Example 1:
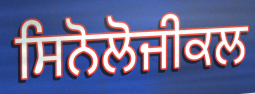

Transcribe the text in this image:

ਸਿਨੋਲੋਜੀਕਲ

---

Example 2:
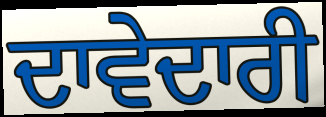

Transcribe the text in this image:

ਦਾਵੇਦਾਰੀ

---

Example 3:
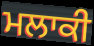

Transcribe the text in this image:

ਮਲਾਕੀ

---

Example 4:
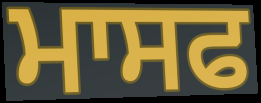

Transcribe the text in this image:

ਮਾਸਫ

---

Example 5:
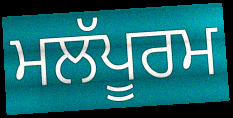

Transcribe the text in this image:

ਮਲੱਪੂਰਮ